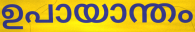
ഉപായാന്തം